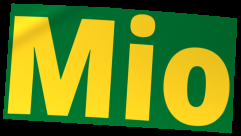
Mio